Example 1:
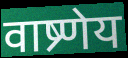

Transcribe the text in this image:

वाष्र्णेय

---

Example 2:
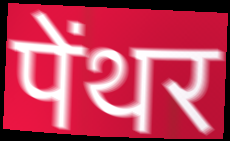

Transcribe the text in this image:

पेंथर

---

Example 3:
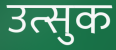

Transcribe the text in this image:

उत्सुक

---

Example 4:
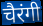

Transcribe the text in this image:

चैरंगी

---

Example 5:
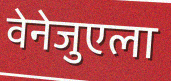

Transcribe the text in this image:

वेनेजुएला